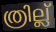
ത്രില്ല്